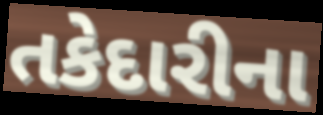
તકેદારીના